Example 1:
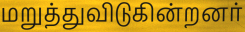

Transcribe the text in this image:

மறுத்துவிடுகின்றனர்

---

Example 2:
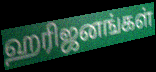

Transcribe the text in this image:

ஹரிஜனங்கள்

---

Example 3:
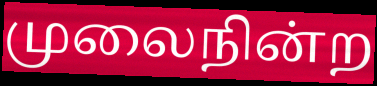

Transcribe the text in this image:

முலைநின்ற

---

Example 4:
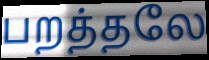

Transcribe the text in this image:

பறத்தலே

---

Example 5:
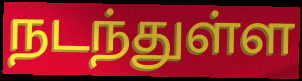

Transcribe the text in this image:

நடந்துள்ள